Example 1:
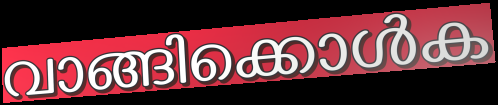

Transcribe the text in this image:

വാങ്ങിക്കൊൾക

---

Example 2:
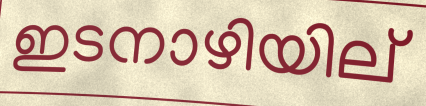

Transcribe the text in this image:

ഇടനാഴിയില്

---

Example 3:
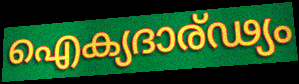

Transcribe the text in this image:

ഐക്യദാര്ഢ്യം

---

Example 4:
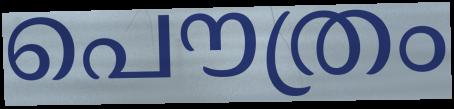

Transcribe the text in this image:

പൌത്രം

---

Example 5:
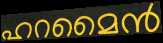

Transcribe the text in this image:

ഹറമൈൻ